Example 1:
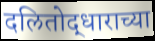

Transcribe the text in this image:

दलितोद्धाराच्या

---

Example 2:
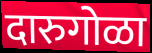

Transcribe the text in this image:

दारुगोळा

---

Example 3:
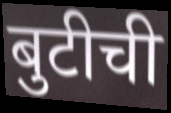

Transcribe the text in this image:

बुटीची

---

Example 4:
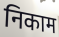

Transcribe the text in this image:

निकाम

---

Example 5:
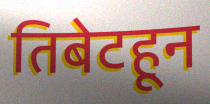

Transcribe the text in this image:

तिबेटहून